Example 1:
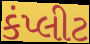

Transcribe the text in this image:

કંપ્લીટ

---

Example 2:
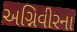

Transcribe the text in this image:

અગ્નિવીરના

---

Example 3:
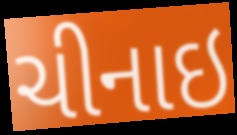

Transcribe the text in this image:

ચીનાઇ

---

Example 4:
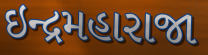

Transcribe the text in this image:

ઇન્દ્રમહારાજા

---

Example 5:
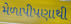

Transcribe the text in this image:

મેળાપીપણાથી